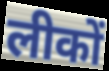
लीकों